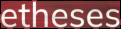
etheses